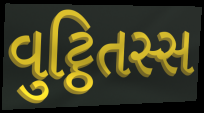
વુટ્ઠિતસ્સ